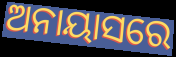
ଅନାୟାସରେ